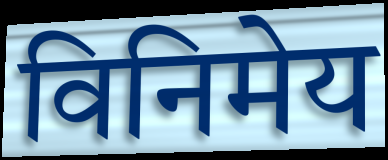
विनिमेय